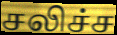
சலிச்ச